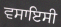
ਵਸਾਇਸੀ